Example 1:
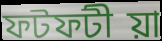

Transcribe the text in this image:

ফটফটীয়া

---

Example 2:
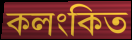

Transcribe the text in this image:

কলংকিত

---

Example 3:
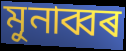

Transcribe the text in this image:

মুনাব্বৰ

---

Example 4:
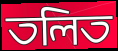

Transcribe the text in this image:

তলিত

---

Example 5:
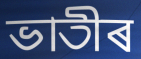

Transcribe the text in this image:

ভাতীৰ